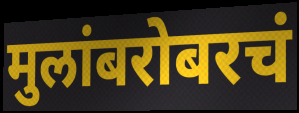
मुलांबरोबरचं